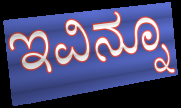
ಇವಿನ್ನೂ